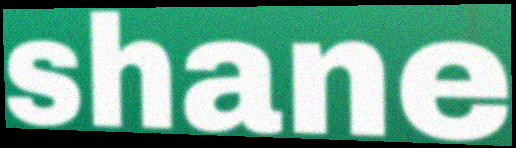
shane